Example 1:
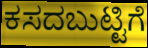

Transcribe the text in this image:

ಕಸದಬುಟ್ಟಿಗೆ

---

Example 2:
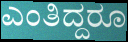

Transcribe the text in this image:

ಎಂತಿದ್ದರೂ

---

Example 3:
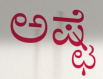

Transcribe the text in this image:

ಅಷ್ಟೆ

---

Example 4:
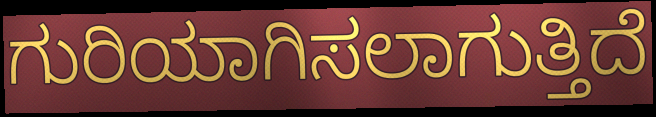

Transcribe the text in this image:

ಗುರಿಯಾಗಿಸಲಾಗುತ್ತಿದೆ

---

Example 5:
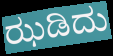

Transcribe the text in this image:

ಝಡಿದು